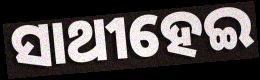
ସାଥୀହେଇ